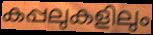
കപ്പലുകളിലും